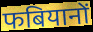
फबियानों